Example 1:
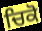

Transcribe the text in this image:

ਚਿਕੋ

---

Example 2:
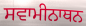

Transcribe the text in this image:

ਸਵਾਮੀਨਾਥਨ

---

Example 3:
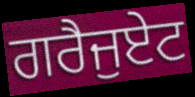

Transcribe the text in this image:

ਗਰੈਜੁਏਟ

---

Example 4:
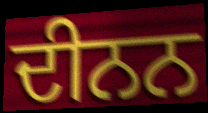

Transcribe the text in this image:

ਦੀਨਨ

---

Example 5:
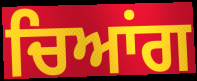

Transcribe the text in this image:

ਚਿਆਂਗ